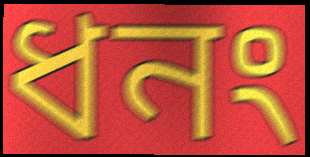
ধনং